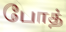
போத்